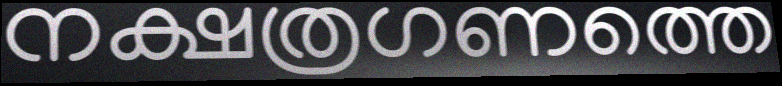
നക്ഷത്രഗണത്തെ